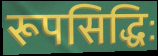
रूपसिद्धिः